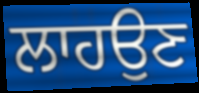
ਲਾਹਉਣ